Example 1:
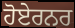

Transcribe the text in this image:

ਹੋਏਰਨਰ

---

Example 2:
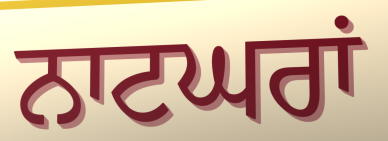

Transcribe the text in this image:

ਨਾਟਘਰਾਂ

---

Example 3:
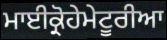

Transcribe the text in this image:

ਮਾਈਕ੍ਰੋਹੇਮੇਟੂਰੀਆ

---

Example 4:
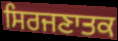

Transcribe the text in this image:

ਸਿਰਜਣਾਤਕ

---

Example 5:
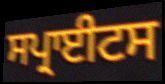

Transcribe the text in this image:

ਸਪ੍ਰਾਈਟਸ